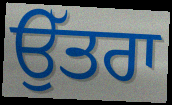
ਉੱਤਰਾ